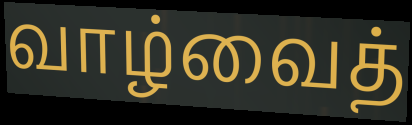
வாழ்வைத்